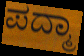
ಪದ್ಮಾ